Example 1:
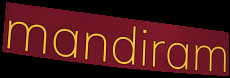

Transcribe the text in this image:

mandiram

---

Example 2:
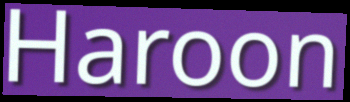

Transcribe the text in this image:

Haroon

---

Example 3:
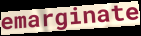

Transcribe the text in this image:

emarginate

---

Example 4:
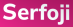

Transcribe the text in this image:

Serfoji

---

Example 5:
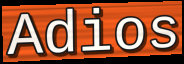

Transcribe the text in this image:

Adios